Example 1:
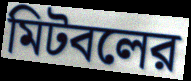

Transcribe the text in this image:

মিটবলের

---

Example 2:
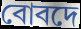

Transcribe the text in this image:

বোবদে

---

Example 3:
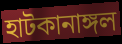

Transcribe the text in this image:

হাটকানাঙ্গল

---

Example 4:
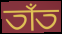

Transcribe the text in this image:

তাঁত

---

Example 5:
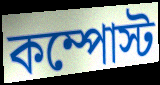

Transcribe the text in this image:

কম্পোস্ট